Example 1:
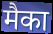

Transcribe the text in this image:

मैका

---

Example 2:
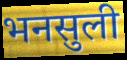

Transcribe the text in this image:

भनसुली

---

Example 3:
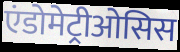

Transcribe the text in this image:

एंडोमेट्रीओसिस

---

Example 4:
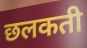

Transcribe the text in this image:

छलकती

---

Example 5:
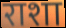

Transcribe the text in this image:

राशा